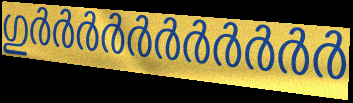
ഗുർർർർർർർർർർർ